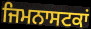
ਜਿਮਨਾਸਟਕਾਂ